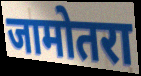
जामोतरा